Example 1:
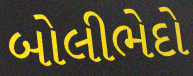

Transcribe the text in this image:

બોલીભેદો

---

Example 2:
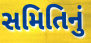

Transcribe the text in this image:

સમિતિનું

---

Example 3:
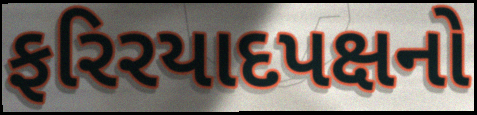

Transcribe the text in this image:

ફરિરયાદપક્ષનો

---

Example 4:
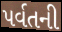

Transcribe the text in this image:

પર્વતની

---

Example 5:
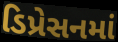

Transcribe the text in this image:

ડિપ્રેસનમાં